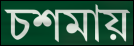
চশমায়